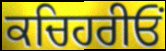
ਕਚਿਹਰੀਓਂ